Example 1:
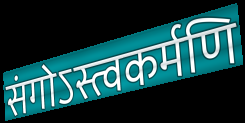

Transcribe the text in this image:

संगोऽस्त्वकर्मणि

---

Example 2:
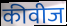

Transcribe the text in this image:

कीवीज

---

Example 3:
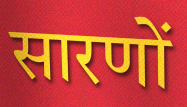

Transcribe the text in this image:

सारणों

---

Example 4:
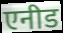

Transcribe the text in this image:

एनीड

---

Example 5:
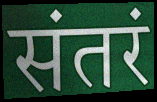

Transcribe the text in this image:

संतरं